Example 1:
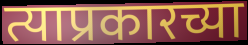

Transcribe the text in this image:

त्याप्रकारच्या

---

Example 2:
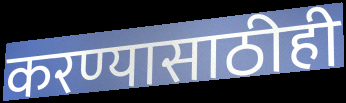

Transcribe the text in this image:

करण्यासाठीही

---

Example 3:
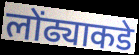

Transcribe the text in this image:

लोंढ्याकडे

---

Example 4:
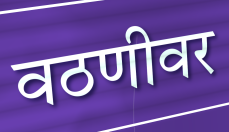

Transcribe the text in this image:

वठणीवर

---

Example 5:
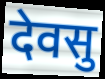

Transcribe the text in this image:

देवसु